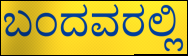
ಬಂದವರಲ್ಲಿ